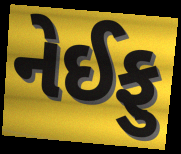
નેઈફુ